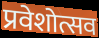
प्रवेशोत्सव